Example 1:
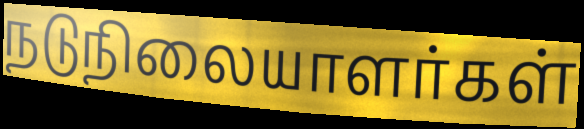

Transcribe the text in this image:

நடுநிலையாளர்கள்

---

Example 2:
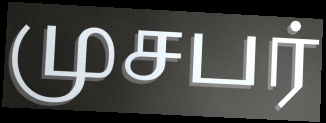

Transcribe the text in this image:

முசபர்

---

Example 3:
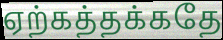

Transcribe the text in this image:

ஏற்கத்தக்கதே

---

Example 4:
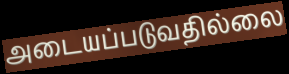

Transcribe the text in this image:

அடையப்படுவதில்லை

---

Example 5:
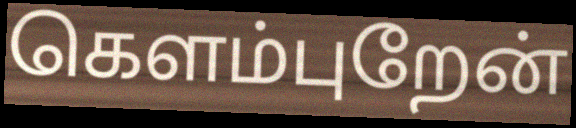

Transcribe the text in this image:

கெளம்புறேன்